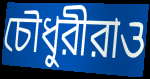
চৌধুরীরাও